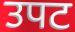
उपट